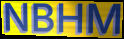
NBHM